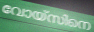
വോയ്സിനെ